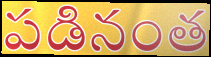
పడినంత